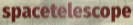
spacetelescope